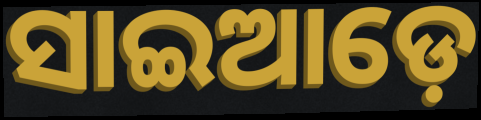
ସାଇଆଡ଼େ